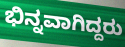
ಭಿನ್ನವಾಗಿದ್ದರು